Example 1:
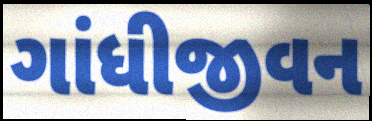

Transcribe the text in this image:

ગાંધીજીવન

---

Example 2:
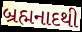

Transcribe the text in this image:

બ્રહ્મનાદથી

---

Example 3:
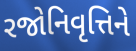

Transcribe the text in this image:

રજોનિવૃત્તિને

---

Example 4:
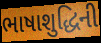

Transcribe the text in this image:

ભાષાશુદ્ધિની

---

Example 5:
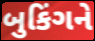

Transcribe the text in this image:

બુકિંગને